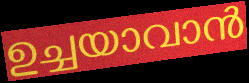
ഉച്ചയാവാൻ